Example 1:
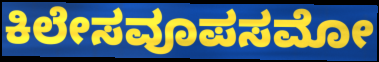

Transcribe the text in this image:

ಕಿಲೇಸವೂಪಸಮೋ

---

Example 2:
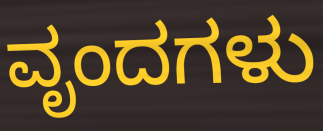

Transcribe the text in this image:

ವೃಂದಗಳು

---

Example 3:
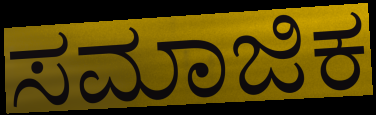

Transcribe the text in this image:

ಸಮಾಜಿಕ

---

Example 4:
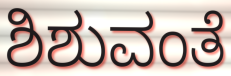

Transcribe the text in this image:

ಶಿಶುವಂತೆ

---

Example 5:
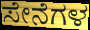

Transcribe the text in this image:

ಸೇನೆಗಳ